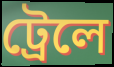
ট্রেলে